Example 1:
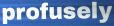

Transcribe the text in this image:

profusely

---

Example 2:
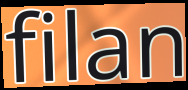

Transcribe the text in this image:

filan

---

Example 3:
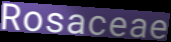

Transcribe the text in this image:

Rosaceae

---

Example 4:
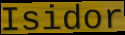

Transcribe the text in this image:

Isidor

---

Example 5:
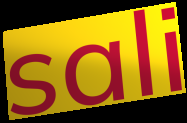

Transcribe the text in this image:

sali